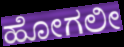
ಹೋಗಲೀ